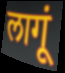
लागूं